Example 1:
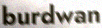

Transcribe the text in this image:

burdwan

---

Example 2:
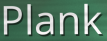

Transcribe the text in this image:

Plank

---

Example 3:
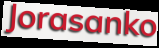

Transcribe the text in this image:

Jorasanko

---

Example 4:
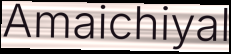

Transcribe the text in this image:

Amaichiyal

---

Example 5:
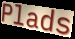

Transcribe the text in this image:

Plads